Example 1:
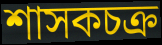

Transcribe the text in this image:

শাসকচক্র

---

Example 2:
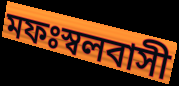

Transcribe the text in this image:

মফঃস্বলবাসী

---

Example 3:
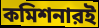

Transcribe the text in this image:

কমিশনারই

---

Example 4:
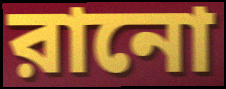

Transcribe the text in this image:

রানো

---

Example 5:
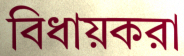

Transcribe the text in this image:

বিধায়করা